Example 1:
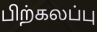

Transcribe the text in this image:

பிற்கலப்பு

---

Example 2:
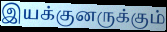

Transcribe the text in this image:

இயக்குனருக்கும்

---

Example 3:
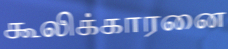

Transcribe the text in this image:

கூலிக்காரனை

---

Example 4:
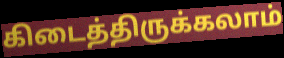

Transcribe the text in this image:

கிடைத்திருக்கலாம்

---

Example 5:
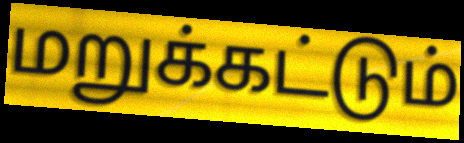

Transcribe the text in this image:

மறுக்கட்டும்